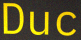
Duc